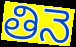
తినె